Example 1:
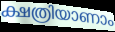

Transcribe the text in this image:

ക്ഷത്രിയാണാം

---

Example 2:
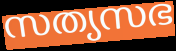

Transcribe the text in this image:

സത്യസഭ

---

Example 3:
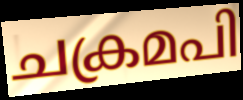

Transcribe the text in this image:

ചക്രമപി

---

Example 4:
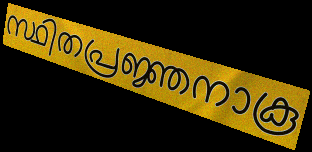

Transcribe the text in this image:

സ്ഥിതപ്രജ്ഞനാകൂ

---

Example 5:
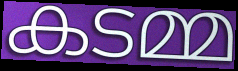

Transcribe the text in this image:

കടമ്മ